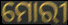
ମୋରୀ